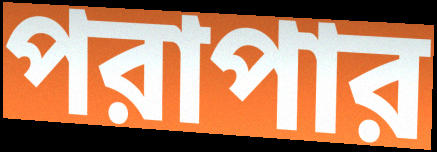
পরাপার